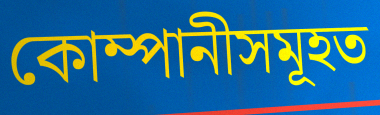
কোম্পানীসমূহত